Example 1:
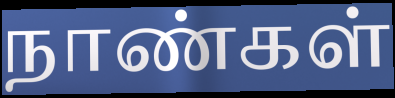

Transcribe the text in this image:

நாண்கள்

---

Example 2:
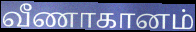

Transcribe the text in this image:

வீணாகானம்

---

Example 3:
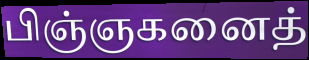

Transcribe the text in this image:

பிஞ்ஞகனைத்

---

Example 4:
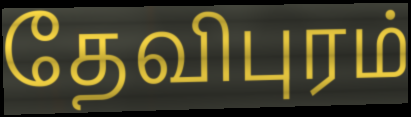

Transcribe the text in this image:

தேவிபுரம்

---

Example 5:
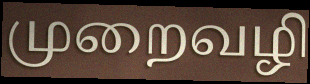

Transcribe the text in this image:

முறைவழி